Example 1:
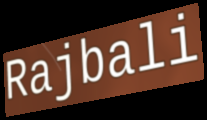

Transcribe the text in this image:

Rajbali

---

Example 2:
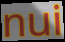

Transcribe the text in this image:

nui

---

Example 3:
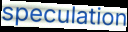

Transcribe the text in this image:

speculation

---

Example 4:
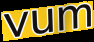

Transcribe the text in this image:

vum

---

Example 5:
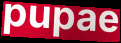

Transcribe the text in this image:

pupae